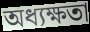
অধ্যক্ষতা